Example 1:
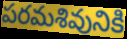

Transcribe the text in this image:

పరమశివునికి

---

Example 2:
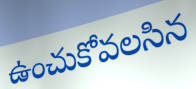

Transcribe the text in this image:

ఉంచుకోవలసిన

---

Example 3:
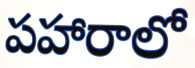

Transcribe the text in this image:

పహారాలో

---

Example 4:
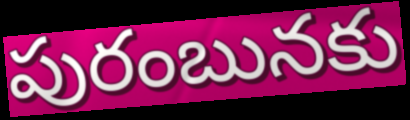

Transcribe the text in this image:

పురంబునకు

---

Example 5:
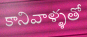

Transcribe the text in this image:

కానివాళ్ళతో